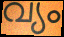
വ്യം